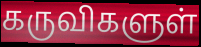
கருவிகளுள்